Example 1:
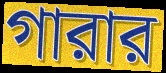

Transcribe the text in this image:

গারার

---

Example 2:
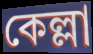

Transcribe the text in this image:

কেল্লা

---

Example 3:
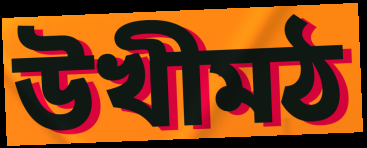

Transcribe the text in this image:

উখীমঠ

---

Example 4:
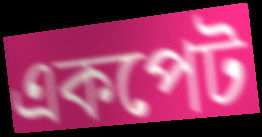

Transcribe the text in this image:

একপেট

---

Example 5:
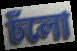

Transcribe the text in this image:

চঁলো